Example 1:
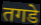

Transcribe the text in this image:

तगडे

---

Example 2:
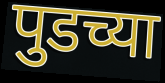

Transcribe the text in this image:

पुडच्या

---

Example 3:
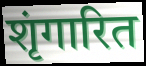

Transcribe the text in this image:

शृंगारित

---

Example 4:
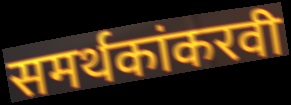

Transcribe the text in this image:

समर्थकांकरवी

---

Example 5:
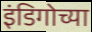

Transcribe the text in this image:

इंडिगोच्या